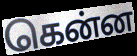
கென்ன